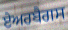
ਏਅਰਬੈਗਸ